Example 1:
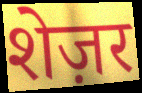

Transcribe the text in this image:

शेज़र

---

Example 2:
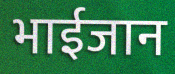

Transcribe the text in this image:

भाईजान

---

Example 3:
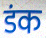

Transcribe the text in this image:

डंक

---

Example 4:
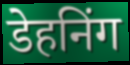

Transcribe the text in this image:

डेहनिंग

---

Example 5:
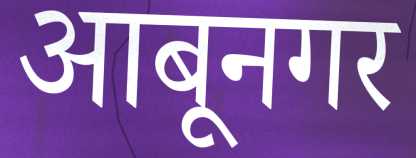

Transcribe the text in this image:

आबूनगर